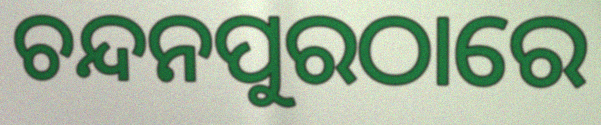
ଚନ୍ଦନପୁରଠାରେ